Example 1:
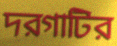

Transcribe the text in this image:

দরগাটির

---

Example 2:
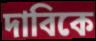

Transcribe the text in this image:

দাবিকে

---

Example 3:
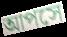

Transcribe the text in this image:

আপসে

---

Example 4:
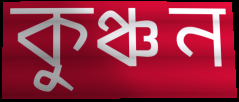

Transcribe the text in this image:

কুঞ্চন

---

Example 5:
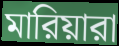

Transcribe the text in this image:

মারিয়ারা